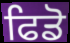
ਫਿਡੋ